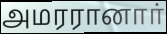
அமரரானார்